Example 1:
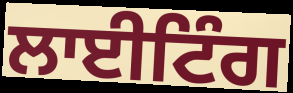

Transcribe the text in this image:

ਲਾਈਟਿੰਗ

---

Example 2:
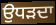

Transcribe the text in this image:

ਉਧੜਦਾ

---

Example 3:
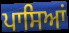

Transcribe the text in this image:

ਪਾਸਿਆਂ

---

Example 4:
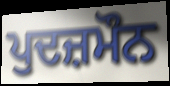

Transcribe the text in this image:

ਪੁਦਜ਼ਮੌਨ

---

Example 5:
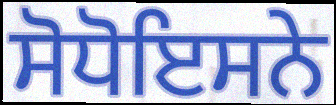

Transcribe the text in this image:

ਸੋਧੋਇਸਨੇ